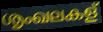
ശൃംഖലകള്